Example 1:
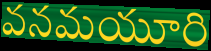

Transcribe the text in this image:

వనమయూరి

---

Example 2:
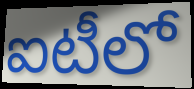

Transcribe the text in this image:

ఐటీలో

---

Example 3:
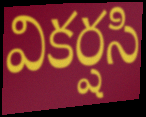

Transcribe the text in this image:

వికర్షసి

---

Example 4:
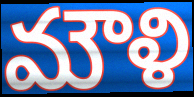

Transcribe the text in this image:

మౌళి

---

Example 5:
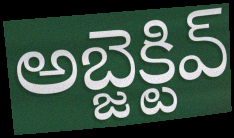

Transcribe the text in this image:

అబ్జెక్టివ్